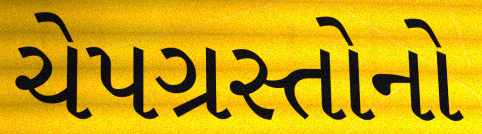
ચેપગ્રસ્તોનો